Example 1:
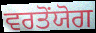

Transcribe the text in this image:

ਵਰਤੋਂਯੋਗ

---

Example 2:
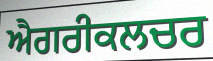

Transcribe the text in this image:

ਐਗਰੀਕਲਚਰ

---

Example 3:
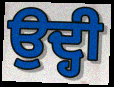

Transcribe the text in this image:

ਉਦ੍ਹੀ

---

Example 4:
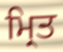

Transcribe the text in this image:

ਮ੍ਰਿਤ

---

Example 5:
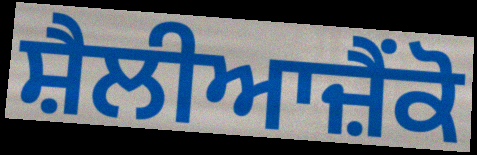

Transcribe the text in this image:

ਸ਼ੈਲੀਆਜ਼ੈਂਕੋ